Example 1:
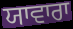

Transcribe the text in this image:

ਯਾਵਾਰਾ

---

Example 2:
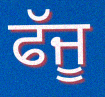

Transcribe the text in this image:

ਫੱਜੂ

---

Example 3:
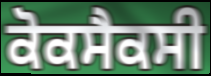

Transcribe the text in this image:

ਕੋਕਸੈਕਸੀ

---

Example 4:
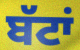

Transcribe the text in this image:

ਬੱਟਾਂ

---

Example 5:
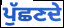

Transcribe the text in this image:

ਪੁੱਛਣਦੇ